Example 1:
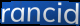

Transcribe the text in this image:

rancid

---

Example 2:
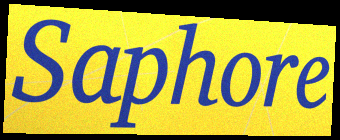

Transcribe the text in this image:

Saphore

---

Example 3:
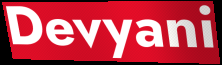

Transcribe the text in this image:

Devyani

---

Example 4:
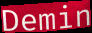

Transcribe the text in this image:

Demin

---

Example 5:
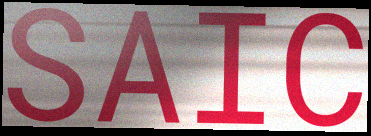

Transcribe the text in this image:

SAIC